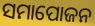
ସମାପୋଜନ